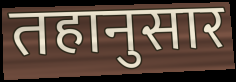
तहानुसार